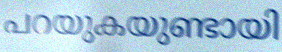
പറയുകയുണ്ടായി